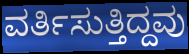
ವರ್ತಿಸುತ್ತಿದ್ದವು